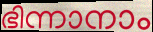
ഭിന്നാനാം